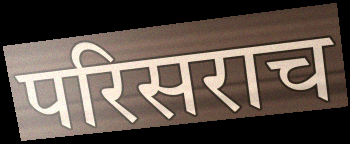
परिसराच